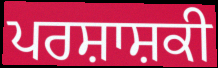
ਪਰਸ਼ਾਸ਼ਕੀ